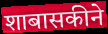
शाबासकीने